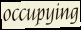
occupying